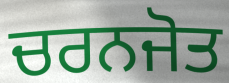
ਚਰਨਜੋਤ